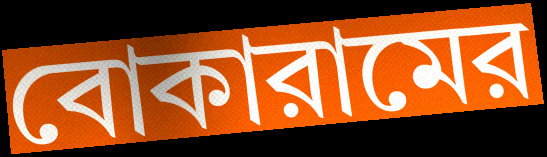
বোকারামের